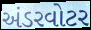
અંડરવોટર